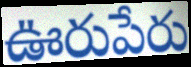
ఊరుపేరు